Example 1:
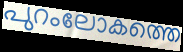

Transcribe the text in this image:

പുറംലോകത്തെ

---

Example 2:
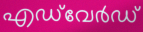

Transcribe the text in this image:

എഡ്‌വേർഡ്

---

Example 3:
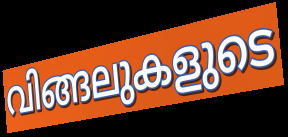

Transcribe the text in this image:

വിങ്ങലുകളുടെ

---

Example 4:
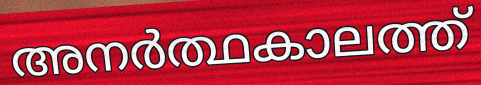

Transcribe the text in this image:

അനർത്ഥകാലത്ത്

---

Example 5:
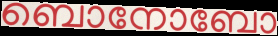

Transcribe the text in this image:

ബൊനോബോ